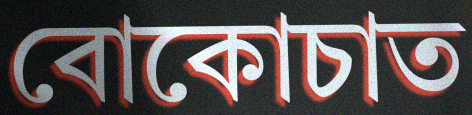
বোকোচাত